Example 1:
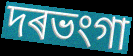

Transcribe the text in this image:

দৰভংগা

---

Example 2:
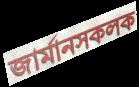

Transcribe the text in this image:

জাৰ্মানসকলক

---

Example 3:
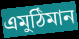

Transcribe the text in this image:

এমুঠিমান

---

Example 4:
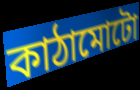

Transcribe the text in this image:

কাঠামোটো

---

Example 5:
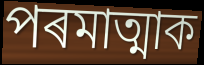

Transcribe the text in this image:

পৰমাত্মাক